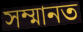
সম্মানত